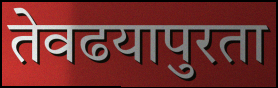
तेवढयापुरता